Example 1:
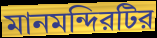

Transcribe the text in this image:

মানমন্দিরটির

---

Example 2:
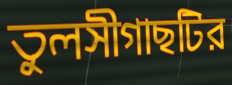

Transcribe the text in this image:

তুলসীগাছটির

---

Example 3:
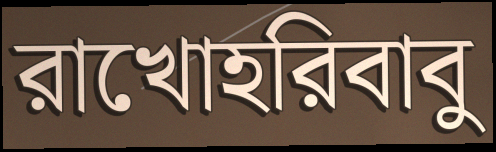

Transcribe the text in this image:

রাখোহরিবাবু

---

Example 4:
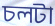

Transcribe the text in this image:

চলটা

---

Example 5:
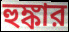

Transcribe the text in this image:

হুঙ্কার